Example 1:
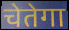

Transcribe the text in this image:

चेतेगा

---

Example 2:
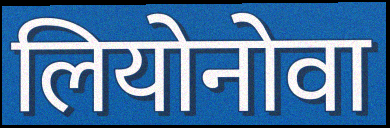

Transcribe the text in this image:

लियोनोवा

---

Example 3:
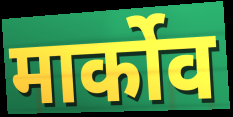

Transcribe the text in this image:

मार्कोव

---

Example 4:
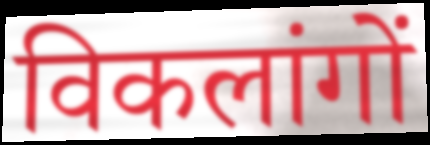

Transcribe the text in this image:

विकलांगों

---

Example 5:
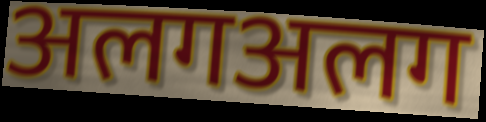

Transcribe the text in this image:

अलगअलग